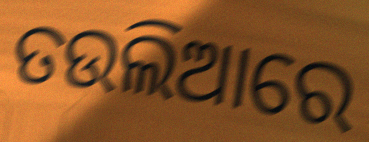
ତଉଲିଆରେ